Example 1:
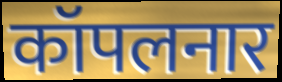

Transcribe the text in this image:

कॉपलनार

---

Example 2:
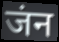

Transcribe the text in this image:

जंन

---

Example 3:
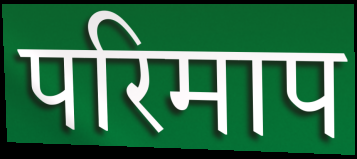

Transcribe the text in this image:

परिमाप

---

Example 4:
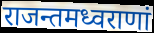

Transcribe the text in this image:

राजन्तमध्वराणां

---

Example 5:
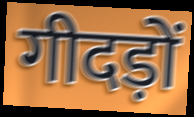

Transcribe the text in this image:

गीदड़ों